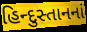
હિન્દુસ્તાનનાં